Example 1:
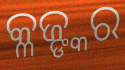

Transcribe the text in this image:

କ୍ଳଜ୍ଙ୍କର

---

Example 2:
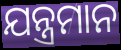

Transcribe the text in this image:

ଯନ୍ତ୍ରମାନ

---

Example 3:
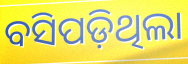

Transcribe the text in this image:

ବସିପଡ଼ିଥିଲା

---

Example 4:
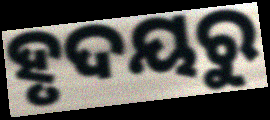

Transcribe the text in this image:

ହୃଦୟରୁ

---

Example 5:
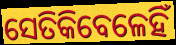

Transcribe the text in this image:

ସେତିକିବେଳେହିଁ